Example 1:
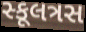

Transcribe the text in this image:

સ્કૂલત્રસ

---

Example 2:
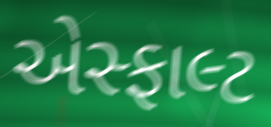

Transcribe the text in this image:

એસ્ફાલ્ટ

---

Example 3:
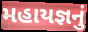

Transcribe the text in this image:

મહાયજ્ઞનું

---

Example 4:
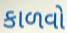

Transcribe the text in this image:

કાળવો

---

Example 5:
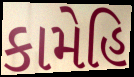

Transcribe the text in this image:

કામેહિ